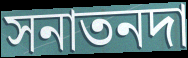
সনাতনদা